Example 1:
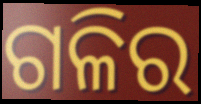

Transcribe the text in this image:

ଗଳିର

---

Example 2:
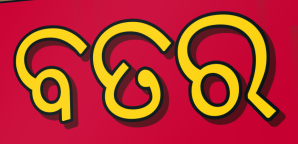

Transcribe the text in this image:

ବତର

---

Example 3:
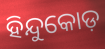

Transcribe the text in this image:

ହିନ୍ଦୁକୋଡ଼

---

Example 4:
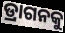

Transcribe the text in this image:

ଡ୍ରାଗନକୁ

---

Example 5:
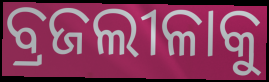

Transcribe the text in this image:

ବ୍ରଜଲୀଳାକୁ